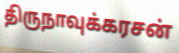
திருநாவுக்கரசன்